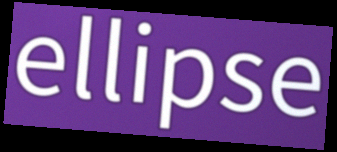
ellipse